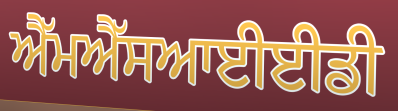
ਐੱਮਐੱਸਆਈਈਡੀ